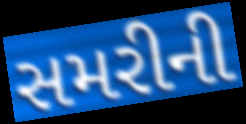
સમરીની